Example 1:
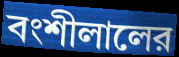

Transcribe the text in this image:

বংশীলালের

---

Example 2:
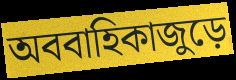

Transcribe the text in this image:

অববাহিকাজুড়ে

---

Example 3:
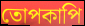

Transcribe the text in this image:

তোপকাপি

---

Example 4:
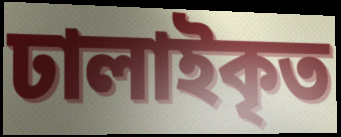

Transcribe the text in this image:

ঢালাইকৃত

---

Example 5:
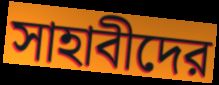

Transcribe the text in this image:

সাহাবীদের